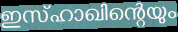
ഇസ്ഹാഖിന്റെയും